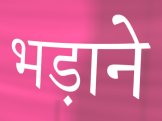
भड़ाने